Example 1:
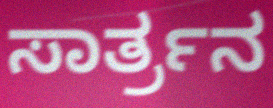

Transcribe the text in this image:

ಸಾರ್ತ್ರನ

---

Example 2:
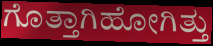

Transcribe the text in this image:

ಗೊತ್ತಾಗಿಹೋಗಿತ್ತು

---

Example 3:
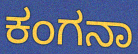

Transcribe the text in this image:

ಕಂಗನಾ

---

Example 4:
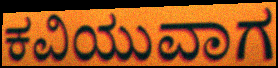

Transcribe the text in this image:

ಕವಿಯುವಾಗ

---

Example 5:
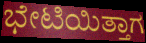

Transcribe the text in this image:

ಭೇಟಿಯಿತ್ತಾಗ